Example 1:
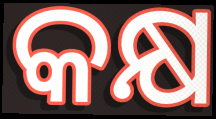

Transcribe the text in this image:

କକ୍ଷ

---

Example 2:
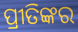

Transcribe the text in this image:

ପ୍ରୀତିଙ୍କର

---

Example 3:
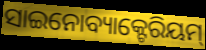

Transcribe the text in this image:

ସାଇନୋବ୍ୟାକ୍ଟେରିୟମ୍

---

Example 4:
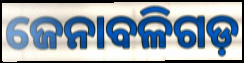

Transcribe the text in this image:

ଜେନାବଳିଗଡ଼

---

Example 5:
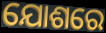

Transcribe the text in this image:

ଯୋଶରେ